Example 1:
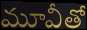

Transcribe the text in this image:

మూవీతో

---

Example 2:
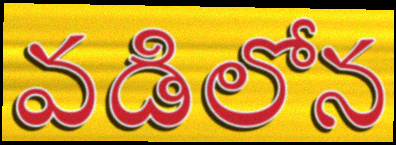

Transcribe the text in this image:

వడిలోన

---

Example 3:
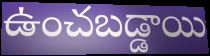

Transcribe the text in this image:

ఉంచబడ్డాయి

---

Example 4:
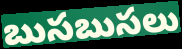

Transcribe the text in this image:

బుసబుసలు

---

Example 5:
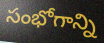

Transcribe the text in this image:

సంభోగాన్ని